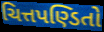
ચિત્તપણ્ડિતો